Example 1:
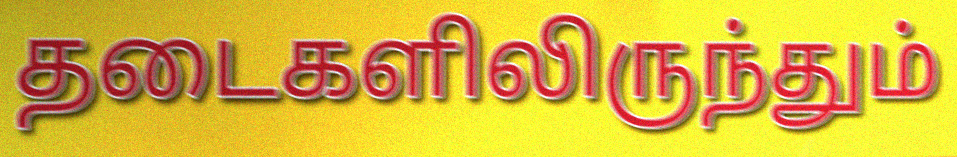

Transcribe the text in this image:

தடைகளிலிருந்தும்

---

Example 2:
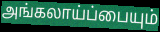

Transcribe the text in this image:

அங்கலாய்ப்பையும்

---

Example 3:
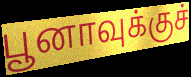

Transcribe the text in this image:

பூனாவுக்குச்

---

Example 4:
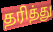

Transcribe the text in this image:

தரித்து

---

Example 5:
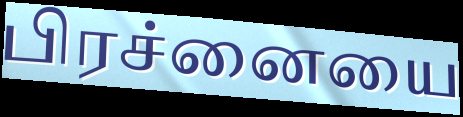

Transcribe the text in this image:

பிரச்னையை